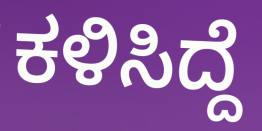
ಕಳಿಸಿದ್ದೆ